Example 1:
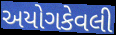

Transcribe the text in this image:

અયોગકેવલી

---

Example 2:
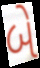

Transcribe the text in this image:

બે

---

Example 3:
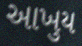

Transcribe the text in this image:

આખુય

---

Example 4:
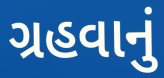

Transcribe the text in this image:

ગ્રહવાનું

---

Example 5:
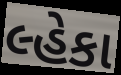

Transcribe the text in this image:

લ્હેકા